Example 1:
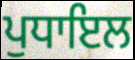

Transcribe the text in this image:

ਪੁਧਾਇਲ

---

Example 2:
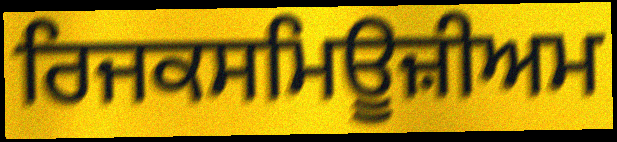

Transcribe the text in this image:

ਰਿਜਕਸਮਿਊਜ਼ੀਅਮ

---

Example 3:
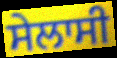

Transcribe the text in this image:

ਸੇਲਾਸੀ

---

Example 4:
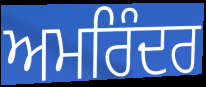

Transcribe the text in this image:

ਅਮਰਿੰਦਰ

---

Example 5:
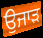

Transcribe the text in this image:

ਉਜਾੜ